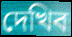
দেখিব